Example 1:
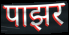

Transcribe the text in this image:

पाझर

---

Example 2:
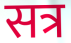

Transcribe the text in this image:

सत्र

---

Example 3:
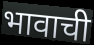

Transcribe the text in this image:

भावाची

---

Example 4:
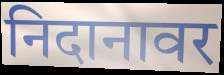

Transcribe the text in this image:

निदानावर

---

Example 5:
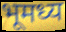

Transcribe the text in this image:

भूमध्य